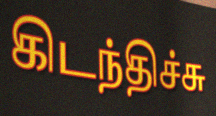
கிடந்திச்சு